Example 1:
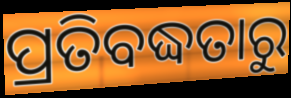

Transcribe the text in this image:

ପ୍ରତିବଦ୍ଧତାରୁ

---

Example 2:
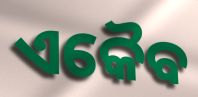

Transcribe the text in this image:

ଏକୈବ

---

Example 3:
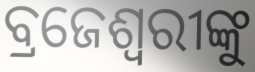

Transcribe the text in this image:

ବ୍ରଜେଶ୍ୱରୀଙ୍କୁ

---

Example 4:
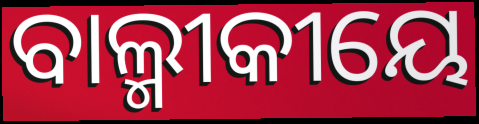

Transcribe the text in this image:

ବାଲ୍ମୀକୀୟେ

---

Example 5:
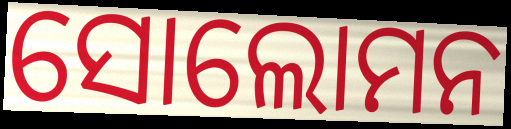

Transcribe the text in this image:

ସୋଲୋମନ